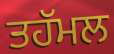
ਤਹੱਮਲ